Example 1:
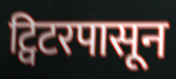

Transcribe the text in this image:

ट्विटरपासून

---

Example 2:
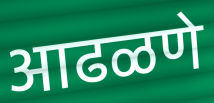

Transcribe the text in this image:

आढळणे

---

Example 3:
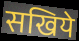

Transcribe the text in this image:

सखिये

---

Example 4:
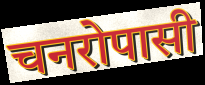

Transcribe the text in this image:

चनरोपासी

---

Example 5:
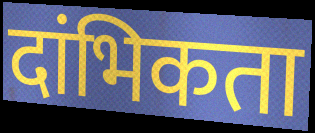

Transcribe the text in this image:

दांभिकता